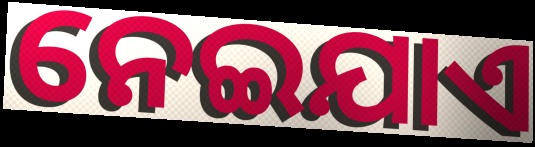
ନେଇଯାଏ